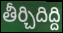
తీర్చిదిద్ది